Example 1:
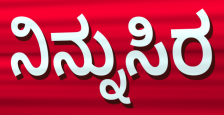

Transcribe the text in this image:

ನಿನ್ನುಸಿರ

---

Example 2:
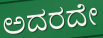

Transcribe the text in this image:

ಅದರದೇ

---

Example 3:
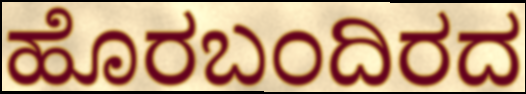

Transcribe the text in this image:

ಹೊರಬಂದಿರದ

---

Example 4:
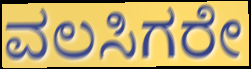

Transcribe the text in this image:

ವಲಸಿಗರೇ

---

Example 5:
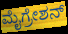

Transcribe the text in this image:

ಮೈಗ್ರೇಶನ್